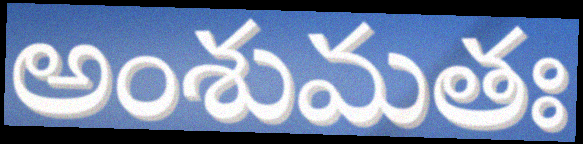
అంశుమతః